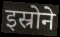
इस्रोने